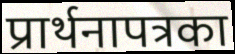
प्रार्थनापत्रका